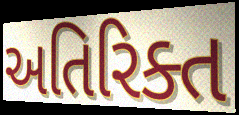
અતિરિક્ત